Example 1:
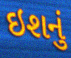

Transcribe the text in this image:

ઇશનું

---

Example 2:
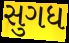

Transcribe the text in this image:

સુગધ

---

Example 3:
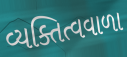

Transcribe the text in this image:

વ્યક્તિત્વવાળા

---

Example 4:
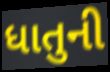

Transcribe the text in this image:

ધાતુની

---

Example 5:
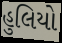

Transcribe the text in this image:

હુલિયો